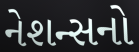
નેશન્સનો